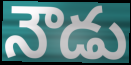
నౌడు